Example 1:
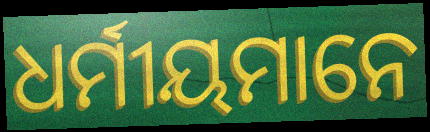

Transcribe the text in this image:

ଧର୍ମୀୟମାନେ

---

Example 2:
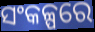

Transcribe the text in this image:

ସଂକଳ୍ପରେ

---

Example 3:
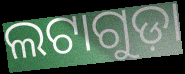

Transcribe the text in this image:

ଲଟାଗୁଡ଼ା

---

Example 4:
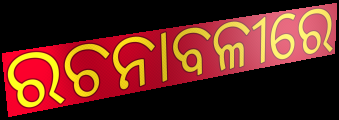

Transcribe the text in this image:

ରଚନାବଳୀରେ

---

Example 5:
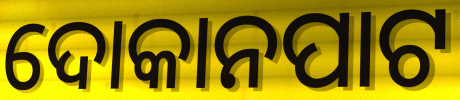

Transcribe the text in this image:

ଦୋକାନପାଟ